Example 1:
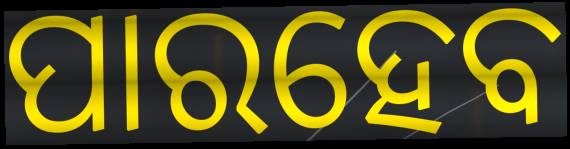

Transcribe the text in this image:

ପାରହେବ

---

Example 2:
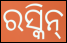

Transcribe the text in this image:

ରସ୍କିନ୍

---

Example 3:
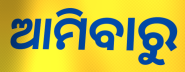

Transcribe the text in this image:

ଆମିବାରୁ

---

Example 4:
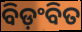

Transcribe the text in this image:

ବିଡ଼ଂବିତ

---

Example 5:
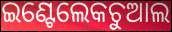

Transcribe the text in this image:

ଇଣ୍ଟେଲେକଚୁଆଲ